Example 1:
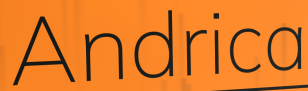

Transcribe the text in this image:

Andrica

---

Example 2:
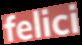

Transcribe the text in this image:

felici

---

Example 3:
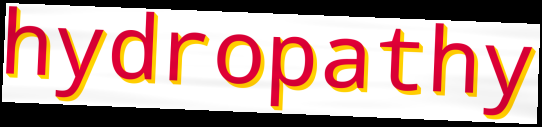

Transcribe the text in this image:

hydropathy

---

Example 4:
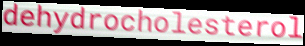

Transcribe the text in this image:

dehydrocholesterol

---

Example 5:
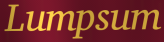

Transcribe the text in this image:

Lumpsum